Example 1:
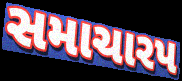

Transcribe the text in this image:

સમાચારપ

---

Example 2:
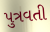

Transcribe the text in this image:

પુત્રવતી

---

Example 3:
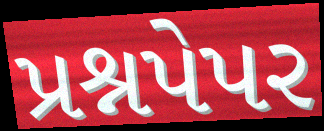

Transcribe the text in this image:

પ્રશ્નપેપર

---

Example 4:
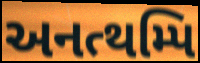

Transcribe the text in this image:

અનત્થમ્પિ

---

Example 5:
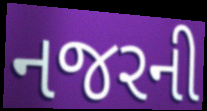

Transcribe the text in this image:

નજરની